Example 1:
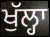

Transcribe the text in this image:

ਖੁੱਲ੍ਹਾ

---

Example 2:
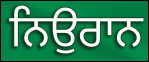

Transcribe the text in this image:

ਨਿਉਰਾਨ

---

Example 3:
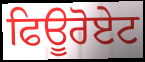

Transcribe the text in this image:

ਫਿਊਰੋਏਟ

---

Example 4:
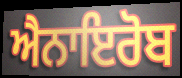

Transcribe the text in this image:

ਐਨਾਇਰੋਬ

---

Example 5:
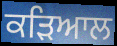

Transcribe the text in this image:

ਕੜਿਆਲ